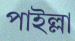
পাইল্লা